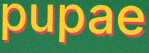
pupae